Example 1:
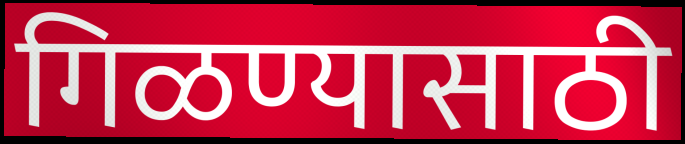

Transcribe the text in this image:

गिळण्यासाठी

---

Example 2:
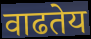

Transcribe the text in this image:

वाढतेय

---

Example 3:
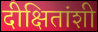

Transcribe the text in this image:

दीक्षितांशी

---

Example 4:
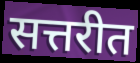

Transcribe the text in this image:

सत्तरीत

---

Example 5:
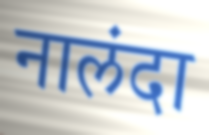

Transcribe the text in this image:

नालंदा